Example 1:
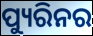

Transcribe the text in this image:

ପ୍ୟୁରିନର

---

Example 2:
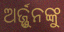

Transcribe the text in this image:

ଅର୍ଜ୍ଜୁନଙ୍କୁ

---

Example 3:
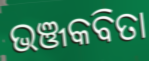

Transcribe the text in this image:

ଭଞ୍ଜକବିତା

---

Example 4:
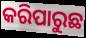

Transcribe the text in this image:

କରିପାରୁଛ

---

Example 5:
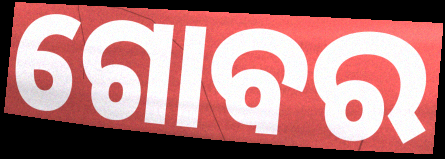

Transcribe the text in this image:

ଗୋବର